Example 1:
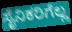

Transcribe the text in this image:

ಸೈನಿಕರಿಗೆಲ್ಲ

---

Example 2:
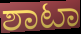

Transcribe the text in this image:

ಶಾಟಾ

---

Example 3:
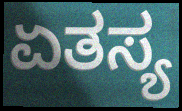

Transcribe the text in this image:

ಏತಸ್ಯ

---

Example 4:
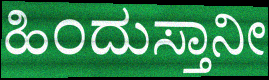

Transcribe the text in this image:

ಹಿಂದುಸ್ತಾನೀ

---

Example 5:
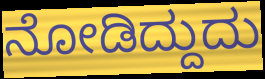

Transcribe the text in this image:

ನೋಡಿದ್ದುದು